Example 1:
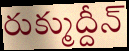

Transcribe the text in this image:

రుక్ముద్దీన్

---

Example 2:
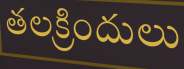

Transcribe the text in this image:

తలక్రిందులు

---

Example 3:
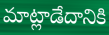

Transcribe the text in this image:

మాట్లాడేదానికి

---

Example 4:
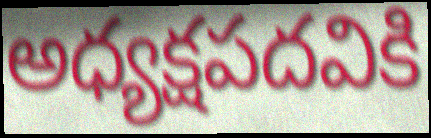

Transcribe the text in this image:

అధ్యక్షపదవికి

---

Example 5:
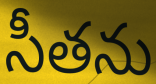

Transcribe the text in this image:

సీతను